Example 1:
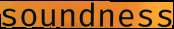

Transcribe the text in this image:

soundness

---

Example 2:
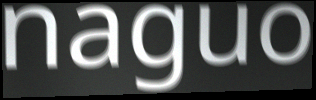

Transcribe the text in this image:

naguo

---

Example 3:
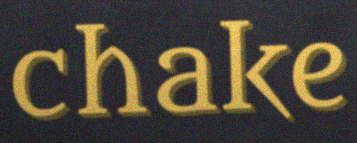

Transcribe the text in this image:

chake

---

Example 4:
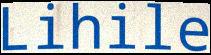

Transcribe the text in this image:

Lihile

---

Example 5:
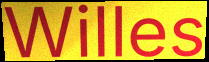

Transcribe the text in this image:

Willes